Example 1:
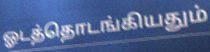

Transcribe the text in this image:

ஓடத்தொடங்கியதும்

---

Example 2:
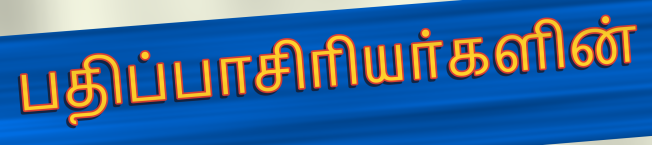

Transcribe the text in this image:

பதிப்பாசிரியர்களின்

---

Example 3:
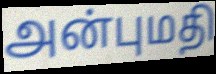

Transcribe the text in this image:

அன்புமதி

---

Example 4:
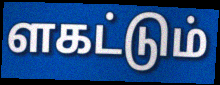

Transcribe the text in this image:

ளகட்டும்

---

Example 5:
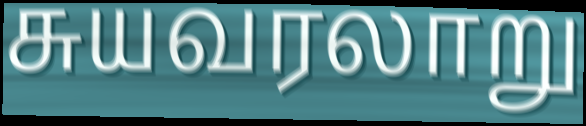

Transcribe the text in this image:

சுயவரலாறு